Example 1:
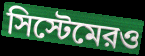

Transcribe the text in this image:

সিস্টেমেরও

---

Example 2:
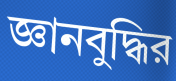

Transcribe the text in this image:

জ্ঞানবুদ্ধির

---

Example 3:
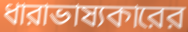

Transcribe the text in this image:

ধারাভাষ্যকারের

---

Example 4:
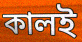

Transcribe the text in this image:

কালই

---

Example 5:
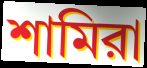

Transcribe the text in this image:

শামিরা